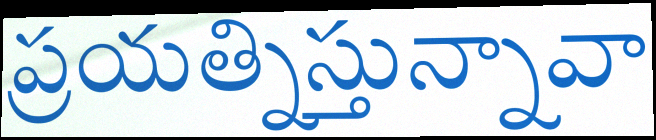
ప్రయత్నిస్తున్నావా